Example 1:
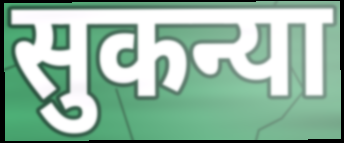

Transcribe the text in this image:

सुकन्या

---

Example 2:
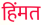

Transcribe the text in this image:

हिंमत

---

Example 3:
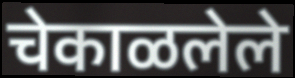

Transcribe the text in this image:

चेकाळलेले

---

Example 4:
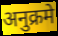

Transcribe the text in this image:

अनुक्रमे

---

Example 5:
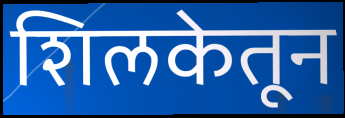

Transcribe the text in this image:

शिलकेतून